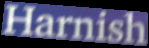
Harnish